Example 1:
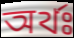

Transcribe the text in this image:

অর্থঃ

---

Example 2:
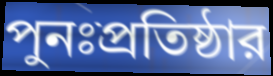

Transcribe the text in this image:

পুনঃপ্রতিষ্ঠার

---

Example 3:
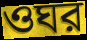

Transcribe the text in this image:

ওঘর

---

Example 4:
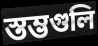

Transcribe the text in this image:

স্তম্ভগুলি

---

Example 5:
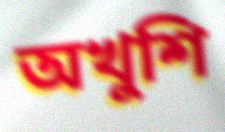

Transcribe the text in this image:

অখুশি